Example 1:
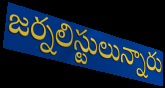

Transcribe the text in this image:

జర్నలిస్టులున్నారు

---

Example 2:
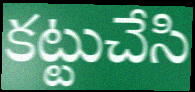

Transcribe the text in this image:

కట్టుచేసి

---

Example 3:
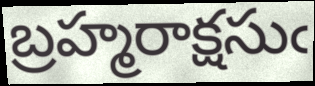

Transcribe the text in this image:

బ్రహ్మరాక్షసుఁ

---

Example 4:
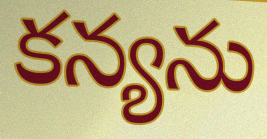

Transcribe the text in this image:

కన్యను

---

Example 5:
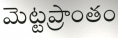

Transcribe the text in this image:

మెట్టప్రాంతం